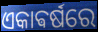
ଏକାଵର୍ଷରେ